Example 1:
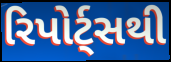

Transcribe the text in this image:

રિપોર્ટ્સથી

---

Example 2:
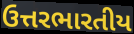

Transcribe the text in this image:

ઉત્તરભારતીય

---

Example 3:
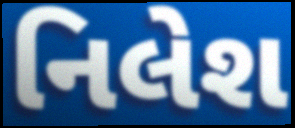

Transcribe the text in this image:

નિલેશ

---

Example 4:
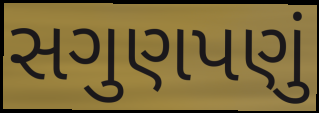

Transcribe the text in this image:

સગુણપણું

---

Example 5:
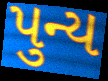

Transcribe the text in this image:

પુન્ય